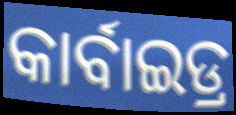
କାର୍ବାଇଡ୍ର